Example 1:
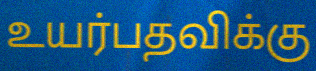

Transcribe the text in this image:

உயர்பதவிக்கு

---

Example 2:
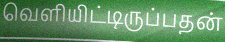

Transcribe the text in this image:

வெளியிட்டிருப்பதன்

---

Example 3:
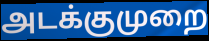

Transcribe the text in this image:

அடக்குமுறை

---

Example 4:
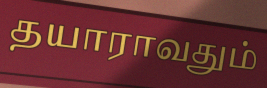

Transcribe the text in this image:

தயாராவதும்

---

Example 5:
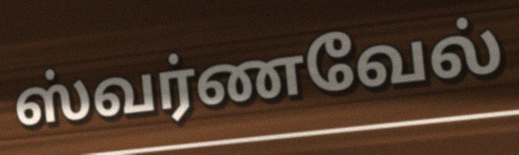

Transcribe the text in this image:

ஸ்வர்ணவேல்